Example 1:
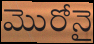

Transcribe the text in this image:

మొరోనై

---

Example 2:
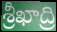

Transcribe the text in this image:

శ్రీఖాద్రి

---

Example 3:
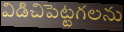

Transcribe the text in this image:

విడిచిపెట్టగలను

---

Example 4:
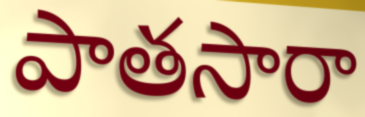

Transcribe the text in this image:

పాతసారా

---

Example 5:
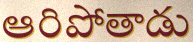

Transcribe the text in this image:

ఆరిపోతాడు